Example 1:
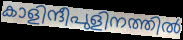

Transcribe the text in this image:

കാളിന്ദീപുളിനത്തിൽ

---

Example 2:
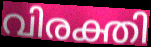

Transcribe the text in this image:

വിരക്തി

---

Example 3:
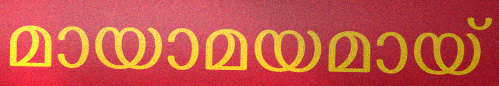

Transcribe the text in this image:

മായാമയമായ്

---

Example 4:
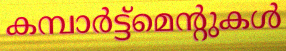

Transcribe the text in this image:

കമ്പാർട്ട്മെന്റുകൾ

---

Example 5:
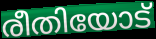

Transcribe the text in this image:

രീതിയോട്